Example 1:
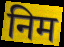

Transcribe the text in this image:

निम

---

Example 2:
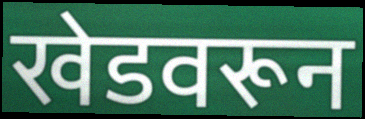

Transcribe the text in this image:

खेडवरून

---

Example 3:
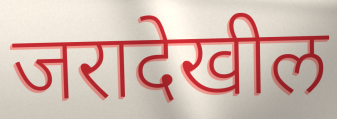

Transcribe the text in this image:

जरादेखील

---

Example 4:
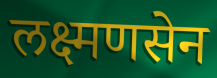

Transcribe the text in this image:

लक्ष्मणसेन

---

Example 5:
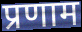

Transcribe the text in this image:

प्रणाम